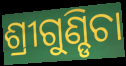
ଶ୍ରୀଗୁଣ୍ଡିଚା